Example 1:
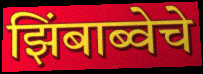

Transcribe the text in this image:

झिंबाब्वेचे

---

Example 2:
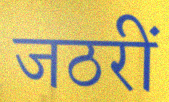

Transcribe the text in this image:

जठरीं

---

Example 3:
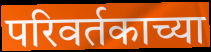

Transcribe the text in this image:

परिवर्तकाच्या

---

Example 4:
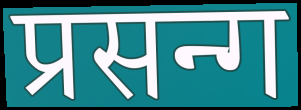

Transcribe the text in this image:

प्रसन्ग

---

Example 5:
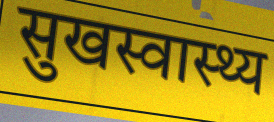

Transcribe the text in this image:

सुखस्वास्थ्य